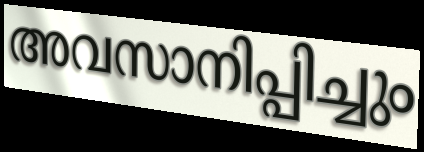
അവസാനിപ്പിച്ചും